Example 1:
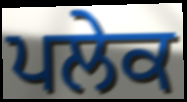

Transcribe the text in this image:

ਪਲੇਕ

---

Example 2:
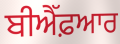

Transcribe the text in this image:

ਬੀਐੱਫ਼ਆਰ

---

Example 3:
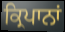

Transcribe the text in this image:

ਕ੍ਰਿਪਾਨਾਂ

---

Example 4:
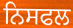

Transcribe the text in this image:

ਨਿਸਫਲ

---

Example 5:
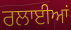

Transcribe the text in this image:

ਰਲਾਈਆਂ